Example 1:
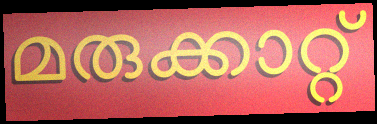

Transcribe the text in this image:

മരുക്കാറ്റ്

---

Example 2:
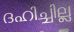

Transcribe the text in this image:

ദഹിച്ചില്ല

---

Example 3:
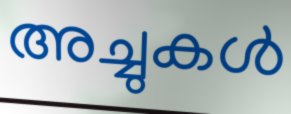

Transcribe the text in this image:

അച്ചുകൾ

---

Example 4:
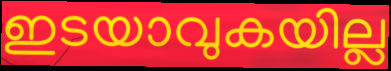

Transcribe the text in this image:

ഇടയാവുകയില്ല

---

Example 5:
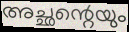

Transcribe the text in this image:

അച്ഛന്റെയും